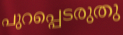
പുറപ്പെടരുതു